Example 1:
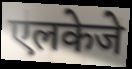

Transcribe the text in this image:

एलकेजे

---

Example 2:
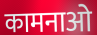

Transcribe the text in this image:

कामनाओ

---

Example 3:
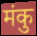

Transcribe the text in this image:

मंकु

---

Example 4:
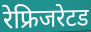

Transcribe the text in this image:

रेफ्रिजरेटड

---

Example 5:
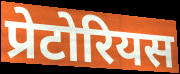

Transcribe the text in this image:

प्रेटोरियस